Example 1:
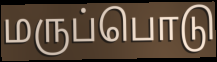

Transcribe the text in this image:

மருப்பொடு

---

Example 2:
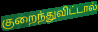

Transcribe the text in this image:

குறைந்துவிட்டால்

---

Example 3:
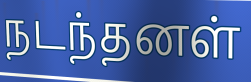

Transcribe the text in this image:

நடந்தனள்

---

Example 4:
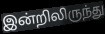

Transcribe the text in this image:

இன்றிலிருந்து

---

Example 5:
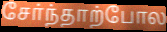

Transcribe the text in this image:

சேர்ந்தாற்போல